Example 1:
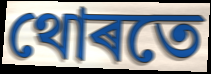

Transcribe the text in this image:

থোৰতে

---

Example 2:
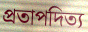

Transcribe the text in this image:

প্ৰতাপদিত্য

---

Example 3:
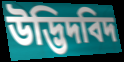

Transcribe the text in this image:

উদ্ভিদবিদ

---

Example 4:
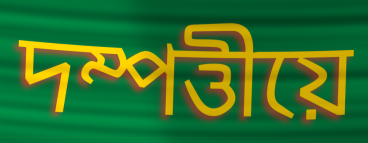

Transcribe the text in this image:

দম্পত্তীয়ে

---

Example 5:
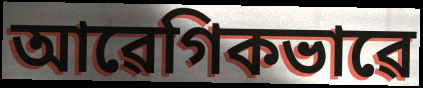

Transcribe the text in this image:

আৱেগিকভাৱে